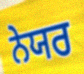
ਨੇਯਰ